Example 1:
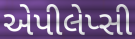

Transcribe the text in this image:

એપીલેપ્સી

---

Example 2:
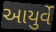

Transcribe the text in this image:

આયુર્વે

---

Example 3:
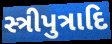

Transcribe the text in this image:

સ્ત્રીપુત્રાદિ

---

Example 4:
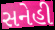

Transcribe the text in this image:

સનેહી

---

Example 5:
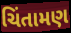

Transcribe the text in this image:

ચિંતામણ